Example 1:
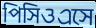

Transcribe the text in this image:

পিসিওএসে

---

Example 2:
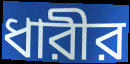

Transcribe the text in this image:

ধারীর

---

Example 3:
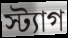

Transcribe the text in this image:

স্ট্যাগ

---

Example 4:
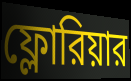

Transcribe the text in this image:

ফ্লোরিয়ার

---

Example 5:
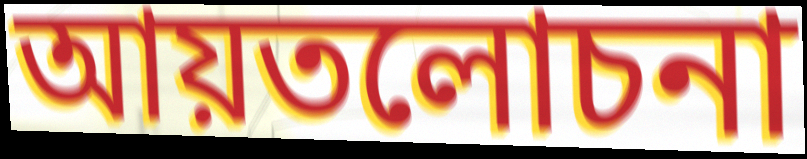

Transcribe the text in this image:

আয়তলোচনা